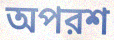
অপরশ